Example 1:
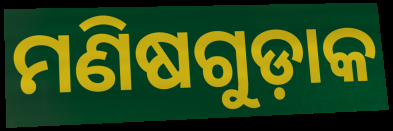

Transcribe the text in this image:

ମଣିଷଗୁଡ଼ାକ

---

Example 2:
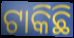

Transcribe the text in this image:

ଟାକିଛି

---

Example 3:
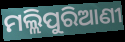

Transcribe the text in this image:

ମଲ୍ଲିପୁରିଆଣୀ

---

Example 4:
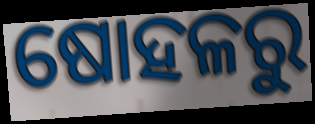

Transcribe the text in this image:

ଷୋହଳରୁ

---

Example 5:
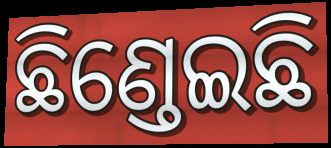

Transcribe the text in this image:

ଛିଣ୍ଡେଇଛି